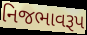
નિજભાવરૂપ